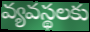
వ్యవస్థలకు